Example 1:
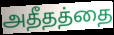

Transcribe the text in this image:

அதீதத்தை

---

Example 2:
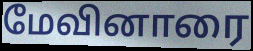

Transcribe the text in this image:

மேவினாரை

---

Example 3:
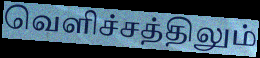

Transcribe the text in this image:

வெளிச்சத்திலும்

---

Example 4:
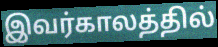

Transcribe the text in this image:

இவர்காலத்தில்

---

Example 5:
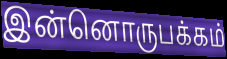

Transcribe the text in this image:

இன்னொருபக்கம்